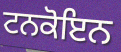
ਟਨਕੋਇਨ